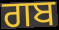
ਗਬ